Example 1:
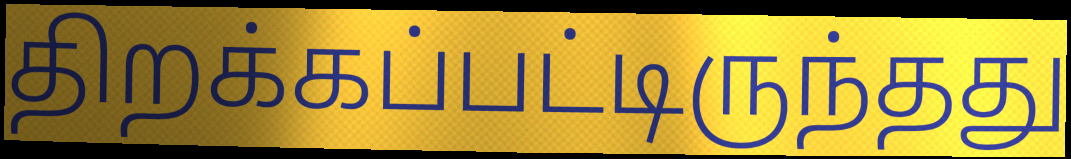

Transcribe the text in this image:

திறக்கப்பட்டிருந்தது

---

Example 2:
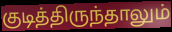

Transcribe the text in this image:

குடித்திருந்தாலும்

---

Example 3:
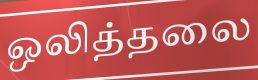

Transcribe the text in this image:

ஒலித்தலை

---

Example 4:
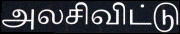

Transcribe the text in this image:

அலசிவிட்டு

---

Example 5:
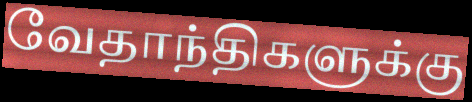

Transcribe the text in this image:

வேதாந்திகளுக்கு